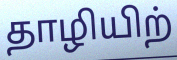
தாழியிற்